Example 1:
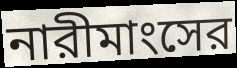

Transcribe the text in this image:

নারীমাংসের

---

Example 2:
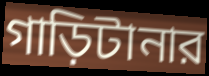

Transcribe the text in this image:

গাড়িটানার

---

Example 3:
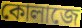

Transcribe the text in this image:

কোলাজে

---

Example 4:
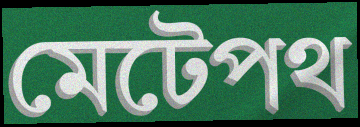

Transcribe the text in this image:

মেটেপথ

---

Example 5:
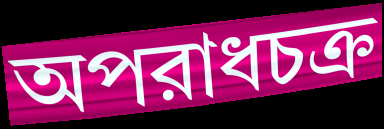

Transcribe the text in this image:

অপরাধচক্র